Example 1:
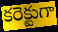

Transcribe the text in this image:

కరెక్టుగా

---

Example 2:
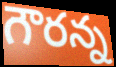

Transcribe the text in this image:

గౌరన్న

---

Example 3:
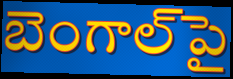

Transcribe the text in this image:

బెంగాల్‌పై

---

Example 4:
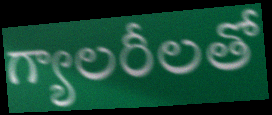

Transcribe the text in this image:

గ్యాలరీలతో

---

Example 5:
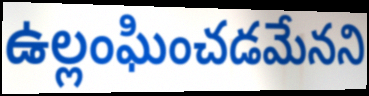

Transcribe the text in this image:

ఉల్లంఘించడమేనని